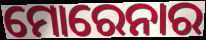
ମୋରେନାର